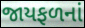
જાયફળનાં